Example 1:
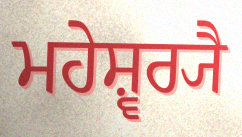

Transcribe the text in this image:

ਮਹੇਸ਼੍ਵਰ੍ਯੈ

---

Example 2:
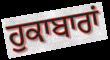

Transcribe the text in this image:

ਹੁਕਾਬਾਰਾਂ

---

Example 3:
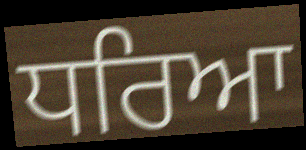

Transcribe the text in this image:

ਧਰਿਆ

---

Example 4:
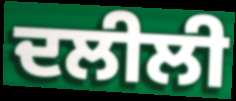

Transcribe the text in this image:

ਦਲੀਲੀ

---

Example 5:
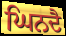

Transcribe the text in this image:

ਘਿਨਦੈ